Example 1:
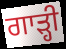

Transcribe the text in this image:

ਗਾੜ੍ਹੀ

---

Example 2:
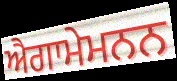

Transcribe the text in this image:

ਐਗਾਮੇਮਨਨ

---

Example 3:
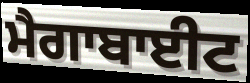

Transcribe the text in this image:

ਮੈਗਾਬਾਈਟ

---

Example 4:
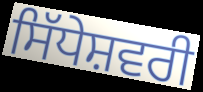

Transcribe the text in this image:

ਸਿੱਧੇਸ਼ਵਰੀ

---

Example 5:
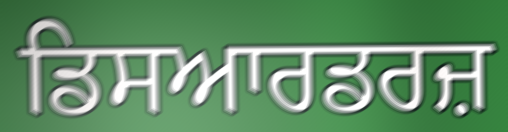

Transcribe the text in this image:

ਡਿਸਆਰਡਰਜ਼